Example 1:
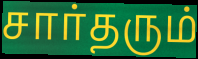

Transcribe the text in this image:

சார்தரும்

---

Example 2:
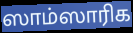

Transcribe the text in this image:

ஸாம்ஸாரிக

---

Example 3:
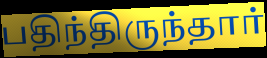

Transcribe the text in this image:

பதிந்திருந்தார்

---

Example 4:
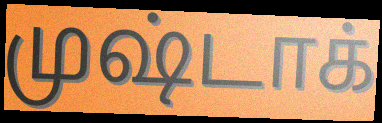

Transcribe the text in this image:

முஷ்டாக்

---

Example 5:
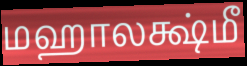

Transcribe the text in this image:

மஹாலக்ஷ்மீ